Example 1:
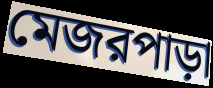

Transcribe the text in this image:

মেজরপাড়া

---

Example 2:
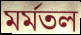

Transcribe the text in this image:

মর্মতল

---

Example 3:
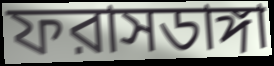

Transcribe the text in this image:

ফরাসডাঙ্গা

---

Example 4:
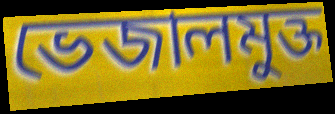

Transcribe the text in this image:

ভেজালমুক্ত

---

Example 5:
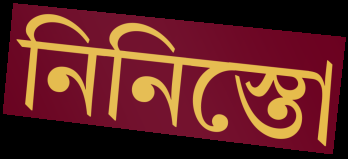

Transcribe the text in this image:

নিনিস্তো